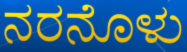
ನರನೊಳು